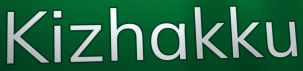
Kizhakku